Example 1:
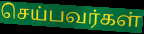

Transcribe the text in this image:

செய்பவர்கள்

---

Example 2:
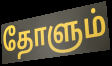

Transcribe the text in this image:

தோளும்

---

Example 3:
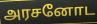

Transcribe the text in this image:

அரசனோட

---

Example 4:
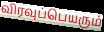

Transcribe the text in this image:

விரவுப்பெயரும்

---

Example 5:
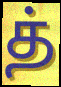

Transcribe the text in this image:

த்